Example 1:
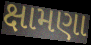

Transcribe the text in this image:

ક્ષામણા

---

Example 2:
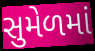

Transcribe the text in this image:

સુમેળમાં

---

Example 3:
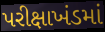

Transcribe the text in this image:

પરીક્ષાખંડમાં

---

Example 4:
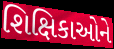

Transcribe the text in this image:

શિક્ષિકાઓને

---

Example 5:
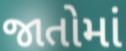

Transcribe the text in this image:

જાતોમાં